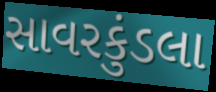
સાવરકુંડલા